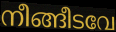
നീങ്ങീടവേ